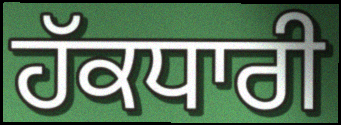
ਹੱਕਧਾਰੀ